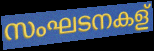
സംഘടനകള്